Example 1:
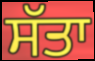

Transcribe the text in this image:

ਸੱਤਾ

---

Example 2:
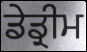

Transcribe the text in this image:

ਡੇਡ੍ਰੀਮ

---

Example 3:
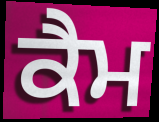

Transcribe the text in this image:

ਕੈਮ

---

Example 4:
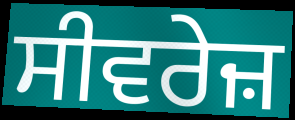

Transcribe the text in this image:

ਸੀਵਰੇਜ਼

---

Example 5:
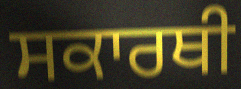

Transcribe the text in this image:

ਸਕਾਰਥੀ